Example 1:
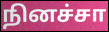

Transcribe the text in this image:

நினச்சா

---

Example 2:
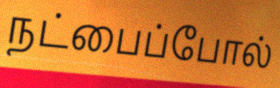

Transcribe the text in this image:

நட்பைப்போல்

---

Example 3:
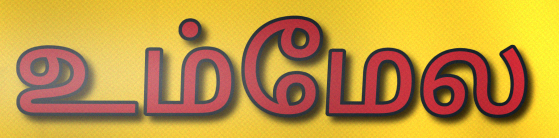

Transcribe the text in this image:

உம்மேல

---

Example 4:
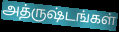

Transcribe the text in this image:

அத்ருஷ்டங்கள்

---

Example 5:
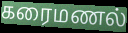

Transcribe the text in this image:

கரைமணல்